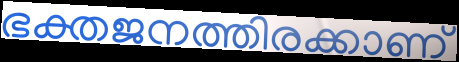
ഭക്തജനത്തിരക്കാണ്